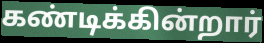
கண்டிக்கின்றார்